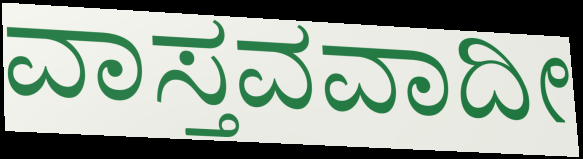
ವಾಸ್ತವವಾದೀ